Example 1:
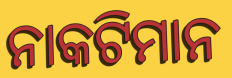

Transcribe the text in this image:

ନାକଟିମାନ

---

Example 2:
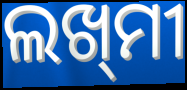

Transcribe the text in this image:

ଲଖ୍‌ମୀ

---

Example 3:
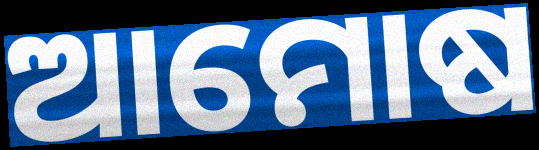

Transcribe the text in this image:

ଆମୋଷ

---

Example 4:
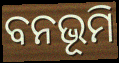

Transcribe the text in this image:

ବନଭୂମି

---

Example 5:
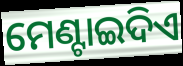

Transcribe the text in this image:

ମେଣ୍ଟାଇଦିଏ